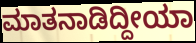
ಮಾತನಾಡಿದ್ದೀಯಾ